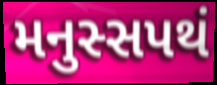
મનુસ્સપથં